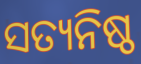
ସତ୍ୟନିଷ୍ଠ